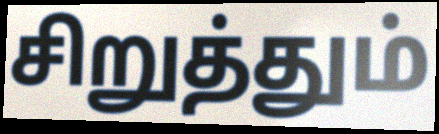
சிறுத்தும்